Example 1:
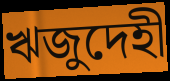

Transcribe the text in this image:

ঋজুদেহী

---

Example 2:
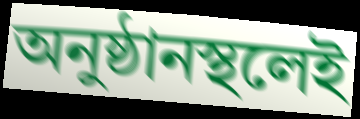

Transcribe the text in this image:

অনুষ্ঠানস্থলেই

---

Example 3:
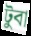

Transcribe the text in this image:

টুবা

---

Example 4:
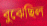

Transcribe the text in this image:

বুঝেছিল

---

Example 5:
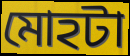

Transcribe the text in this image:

মোহটা